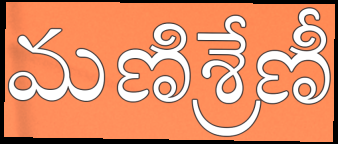
మణిశ్రేణీ